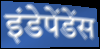
इंडेपेंडेंस